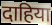
दाहिया